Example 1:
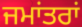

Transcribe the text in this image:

ਜਮਾਂਤਰਾਂ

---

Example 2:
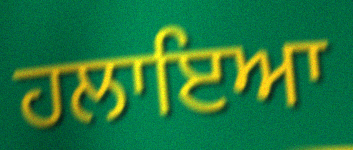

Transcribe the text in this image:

ਹਲਾਇਆ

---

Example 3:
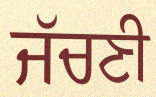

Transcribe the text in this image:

ਜੱਚਣੀ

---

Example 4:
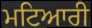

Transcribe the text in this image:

ਮਟਿਆਰੀ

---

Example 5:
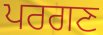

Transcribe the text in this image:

ਪਰਗਣ